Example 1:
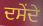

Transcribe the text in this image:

ਦਸੇਂਦੇ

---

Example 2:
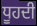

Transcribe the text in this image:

ਧੂਹਦੀ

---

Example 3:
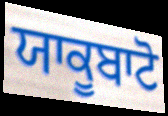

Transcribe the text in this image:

ਯਾਕੂਬਾਟੋ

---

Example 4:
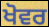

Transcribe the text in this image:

ਖੋਵਰ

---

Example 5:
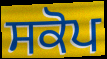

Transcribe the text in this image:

ਸਕੋਪ